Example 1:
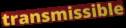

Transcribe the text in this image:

transmissible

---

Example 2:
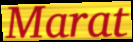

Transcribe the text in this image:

Marat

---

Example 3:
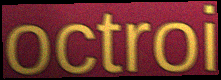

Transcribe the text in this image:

octroi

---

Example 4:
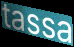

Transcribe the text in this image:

tassa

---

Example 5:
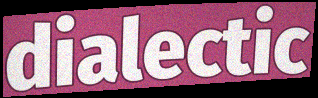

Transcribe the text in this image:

dialectic